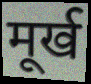
मूर्ख